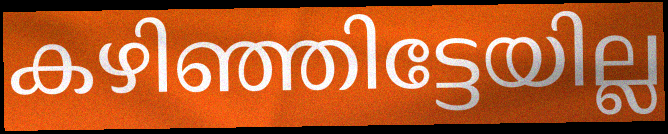
കഴിഞ്ഞിട്ടേയില്ല